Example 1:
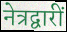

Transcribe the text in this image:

नेत्रद्वारीं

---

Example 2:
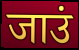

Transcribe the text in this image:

जाउं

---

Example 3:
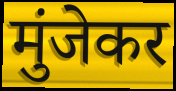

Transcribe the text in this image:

मुंजेकर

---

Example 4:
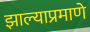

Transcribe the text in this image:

झाल्याप्रमाणे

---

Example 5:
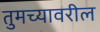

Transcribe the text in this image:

तुमच्यावरील